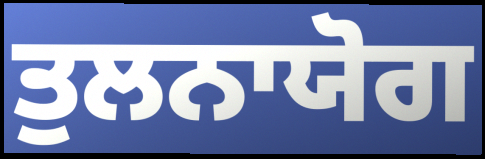
ਤੁਲਨਾਯੋਗ